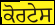
ਕੋਰਟੇਸ